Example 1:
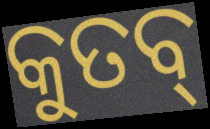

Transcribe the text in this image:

କୁତବ୍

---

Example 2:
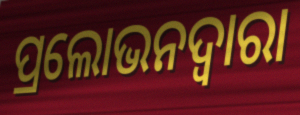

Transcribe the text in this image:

ପ୍ରଲୋଭନଦ୍ୱାରା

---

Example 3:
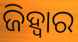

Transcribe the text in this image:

ଜିହ୍ଵାର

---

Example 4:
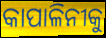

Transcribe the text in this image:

କାପାଳିନୀକୁ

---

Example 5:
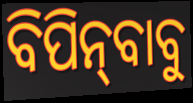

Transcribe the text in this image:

ବିପିନ୍‍ବାବୁ